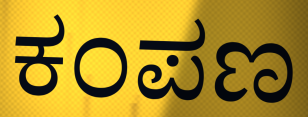
ಕಂಪಣ